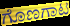
ಗೊಣಗಾಟ